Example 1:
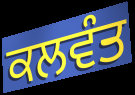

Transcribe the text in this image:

ਕਲਵੰਤ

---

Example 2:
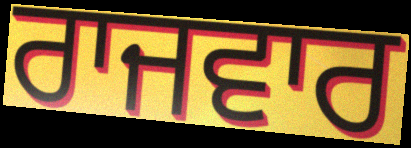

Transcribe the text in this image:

ਰਾਜਵਾਰ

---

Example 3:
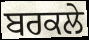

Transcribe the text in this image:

ਬਰਕਲੇ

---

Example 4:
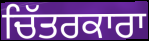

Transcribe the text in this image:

ਚਿੱਤਰਕਾਰਾ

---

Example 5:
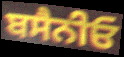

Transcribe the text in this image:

ਬਸੈਨੀਓ